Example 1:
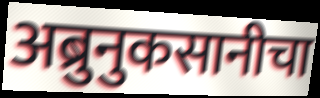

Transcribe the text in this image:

अब्रुनुकसानीचा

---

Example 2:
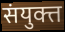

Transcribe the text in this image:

संयुक्त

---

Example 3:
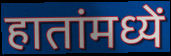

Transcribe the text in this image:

हातांमध्यें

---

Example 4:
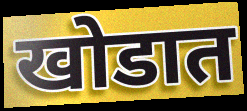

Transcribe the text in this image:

खोडात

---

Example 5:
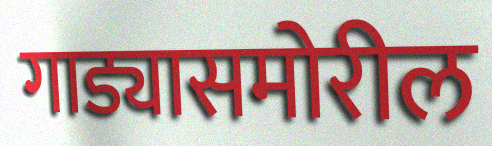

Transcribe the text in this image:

गाड्यासमोरील